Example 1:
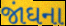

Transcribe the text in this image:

જાંઘના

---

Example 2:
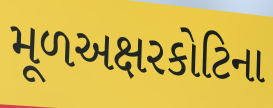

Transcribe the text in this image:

મૂળઅક્ષરકોટિના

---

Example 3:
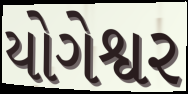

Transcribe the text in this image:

યોગેશ્વર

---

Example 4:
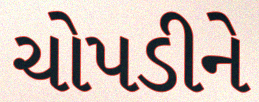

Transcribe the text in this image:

ચોપડીને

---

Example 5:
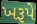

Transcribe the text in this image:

ખરૂપે